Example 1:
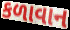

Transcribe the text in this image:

કળાવાન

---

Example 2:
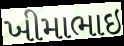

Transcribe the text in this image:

ખીમાભાઇ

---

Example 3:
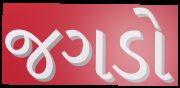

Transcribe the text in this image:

જગડો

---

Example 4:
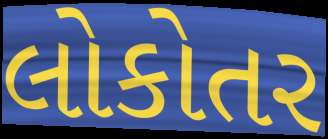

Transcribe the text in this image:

લોકોતર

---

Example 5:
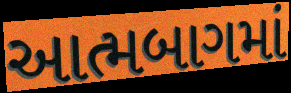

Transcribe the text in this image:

આત્મબાગમાં